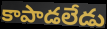
కాపాడలేడు